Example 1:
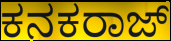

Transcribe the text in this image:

ಕನಕರಾಜ್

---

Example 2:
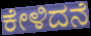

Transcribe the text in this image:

ಕೇಳಿದನೆ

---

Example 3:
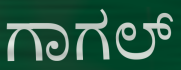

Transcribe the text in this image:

ಗಾಗಲ್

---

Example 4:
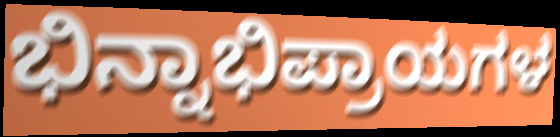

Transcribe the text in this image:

ಭಿನ್ನಾಭಿಪ್ರಾಯಗಳ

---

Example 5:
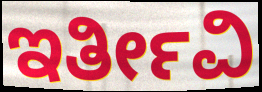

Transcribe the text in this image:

ಇರ್ತೀವಿ